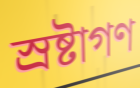
স্রষ্টাগণ